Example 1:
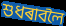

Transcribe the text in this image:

শুধৰাবলৈ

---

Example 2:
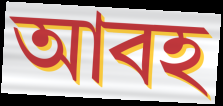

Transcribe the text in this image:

আবহ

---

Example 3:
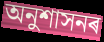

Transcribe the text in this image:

অনুশাসনৰ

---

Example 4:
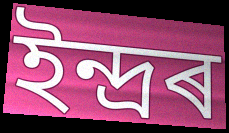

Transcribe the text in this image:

ইন্দ্ৰৰ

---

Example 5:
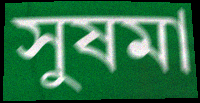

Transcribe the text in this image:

সুষমা